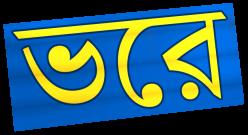
ভরে